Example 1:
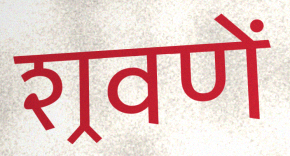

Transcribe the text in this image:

श्रवणें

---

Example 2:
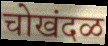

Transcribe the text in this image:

चोखंदळ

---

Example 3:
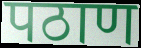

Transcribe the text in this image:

पठाण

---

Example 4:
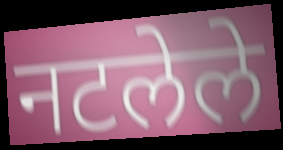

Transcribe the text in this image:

नटलेले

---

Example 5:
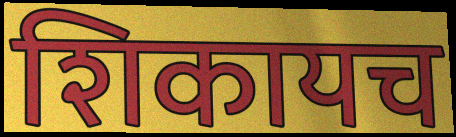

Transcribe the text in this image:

शिकायच